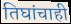
तिघांचाही